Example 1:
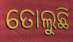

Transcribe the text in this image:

ତୋଲୁଛି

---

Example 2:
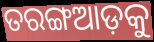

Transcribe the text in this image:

ତରଙ୍ଗଆଡ଼କୁ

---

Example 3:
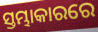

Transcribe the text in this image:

ସ୍ତମ୍ଭାକାରରେ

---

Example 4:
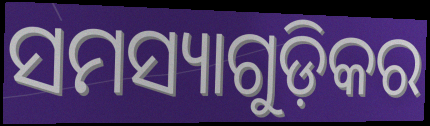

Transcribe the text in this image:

ସମସ୍ୟାଗୁଡ଼ିକର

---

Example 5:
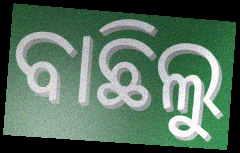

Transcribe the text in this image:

ବାଛିଲୁ